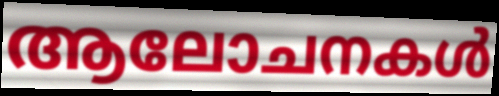
ആലോചനകൾ